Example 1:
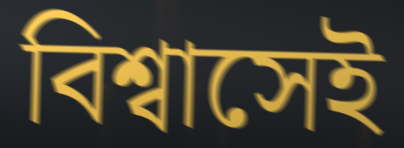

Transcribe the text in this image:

বিশ্বাসেই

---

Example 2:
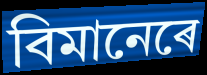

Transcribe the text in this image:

বিমানেৰে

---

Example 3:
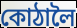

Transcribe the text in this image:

কোঠালৈ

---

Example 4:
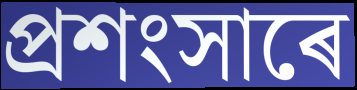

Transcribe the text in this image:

প্ৰশংসাৰে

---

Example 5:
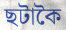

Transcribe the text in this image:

ছটাকৈ